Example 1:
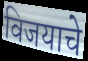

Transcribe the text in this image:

विजयाचे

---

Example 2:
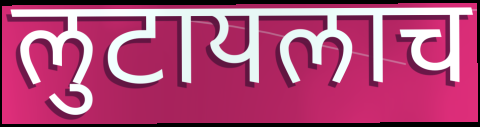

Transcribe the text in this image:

लुटायलाच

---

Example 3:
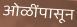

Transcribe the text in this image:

ओळींपासून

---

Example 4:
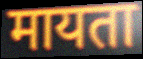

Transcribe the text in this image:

मायता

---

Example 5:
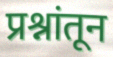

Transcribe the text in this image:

प्रश्नांतून